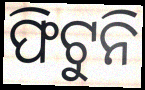
ଫିଟୁନି